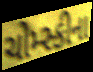
ચોમ્સ્કીના